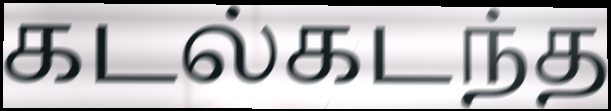
கடல்கடந்த